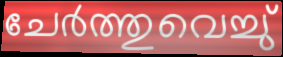
ചേർത്തുവെച്ചു്